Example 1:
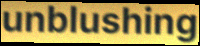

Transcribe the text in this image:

unblushing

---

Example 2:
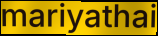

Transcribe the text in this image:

mariyathai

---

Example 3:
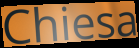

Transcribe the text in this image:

Chiesa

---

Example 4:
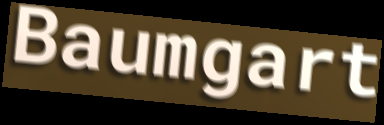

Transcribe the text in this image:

Baumgart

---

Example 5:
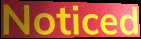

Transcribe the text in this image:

Noticed